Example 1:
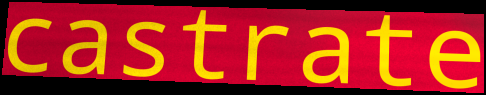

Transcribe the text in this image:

castrate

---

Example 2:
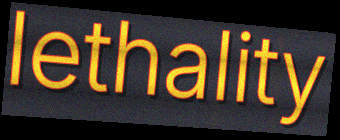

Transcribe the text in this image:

lethality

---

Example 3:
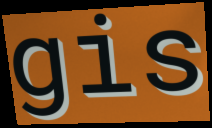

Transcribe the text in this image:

gis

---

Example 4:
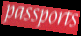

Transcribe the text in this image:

passports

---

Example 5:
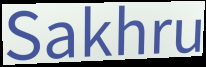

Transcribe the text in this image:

Sakhru